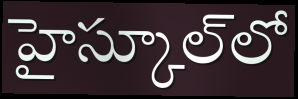
హైస్కూల్‌లో